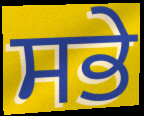
ਸਭੇ